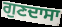
ਗੁਣਦਾਸਾ